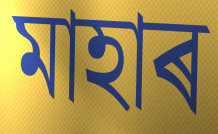
মাহাৰ